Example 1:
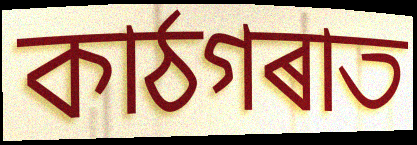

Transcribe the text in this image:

কাঠগৰাত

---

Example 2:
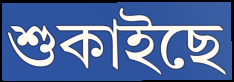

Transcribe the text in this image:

শুকাইছে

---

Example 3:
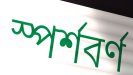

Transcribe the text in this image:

স্পৰ্শবৰ্ণ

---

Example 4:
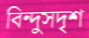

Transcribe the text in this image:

বিন্দুসদৃশ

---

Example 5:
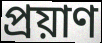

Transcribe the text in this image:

প্ৰয়াণ